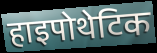
हाइपोथेटिक